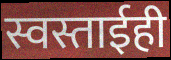
स्वस्ताईही